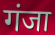
गंजा